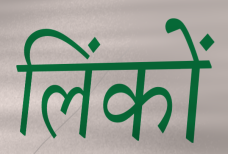
लिंकों